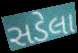
સડેલા